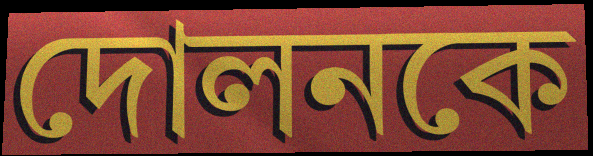
দোলনকে